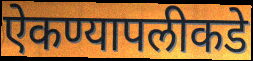
ऐकण्यापलीकडे